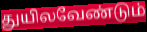
துயிலவேண்டும்